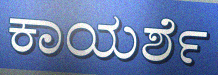
ಕಾಯರ್ಶೆ